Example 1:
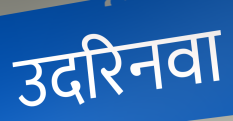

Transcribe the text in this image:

उदरिनवा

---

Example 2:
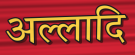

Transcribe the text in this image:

अल्लादि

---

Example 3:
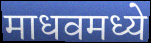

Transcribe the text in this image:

माधवमध्ये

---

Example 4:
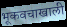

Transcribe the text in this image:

भूकवचाखाली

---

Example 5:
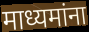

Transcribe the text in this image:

माध्यमांना